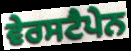
ਵੇਰਸਟੈਪੇਨ